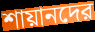
শায়ানদের